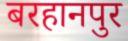
बरहानपुर